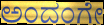
ಅಂದಂಗೇ